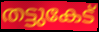
തട്ടുകേട്